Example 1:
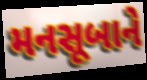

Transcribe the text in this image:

મનસૂબાને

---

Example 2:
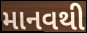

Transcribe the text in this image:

માનવથી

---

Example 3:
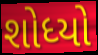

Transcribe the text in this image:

શોધ્યો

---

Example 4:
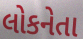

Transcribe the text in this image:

લોકનેતા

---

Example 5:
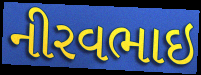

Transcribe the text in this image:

નીરવભાઇ